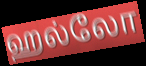
ஹல்லோ